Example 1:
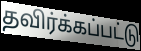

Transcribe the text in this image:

தவிர்க்கப்பட்டு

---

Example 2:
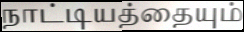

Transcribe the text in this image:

நாட்டியத்தையும்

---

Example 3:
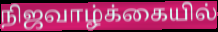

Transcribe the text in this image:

நிஜவாழ்க்கையில்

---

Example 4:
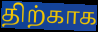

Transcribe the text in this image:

திற்காக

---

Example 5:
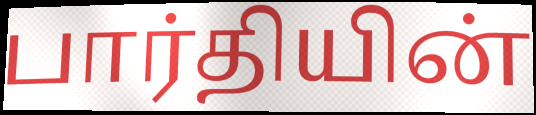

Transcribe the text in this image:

பார்தியின்